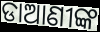
ଡାଆଣୀଙ୍କ